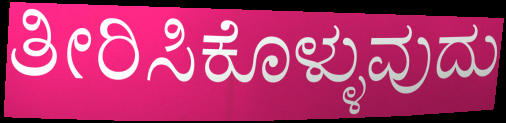
ತೀರಿಸಿಕೊಳ್ಳುವುದು